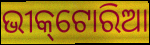
ଭୀକ୍‌ଟୋରିଆ